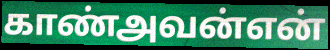
காண்அவன்என்